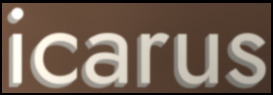
icarus